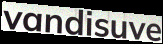
vandisuve